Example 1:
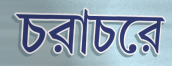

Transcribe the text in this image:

চরাচরে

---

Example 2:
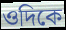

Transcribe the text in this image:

ওদিকে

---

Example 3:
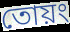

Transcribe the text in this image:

তোয়ং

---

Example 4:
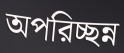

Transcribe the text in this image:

অপরিচ্ছন্ন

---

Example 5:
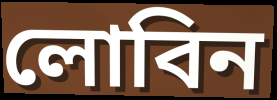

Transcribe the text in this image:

লোবিন